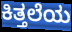
ಕಿತ್ತಲೆಯ